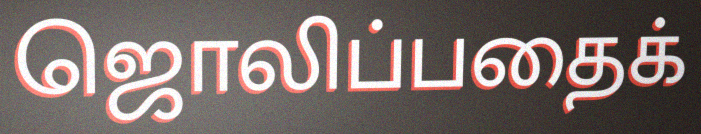
ஜொலிப்பதைக்